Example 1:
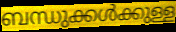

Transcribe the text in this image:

ബന്ധുക്കൾക്കുള്ള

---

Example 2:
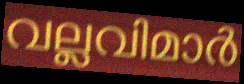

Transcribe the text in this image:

വല്ലവിമാർ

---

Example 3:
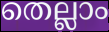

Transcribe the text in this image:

തെല്ലാം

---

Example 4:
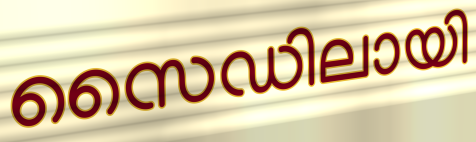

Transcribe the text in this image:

സൈഡിലായി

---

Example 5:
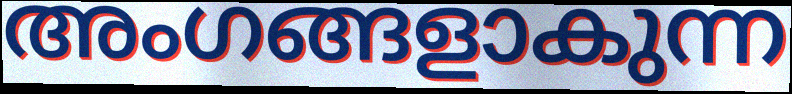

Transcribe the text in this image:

അംഗങ്ങളാകുന്ന